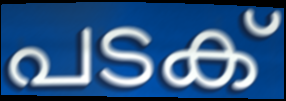
പടക്